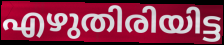
എഴുതിരിയിട്ട